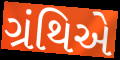
ગ્રંથિએ